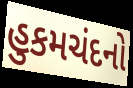
હુકમચંદનો